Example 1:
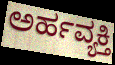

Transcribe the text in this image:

ಅರ್ಹವ್ಯಕ್ತಿ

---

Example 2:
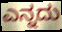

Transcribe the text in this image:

ಎನ್ನದು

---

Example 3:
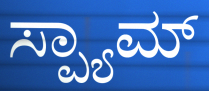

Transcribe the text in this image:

ಸ್ಪ್ಯಾಮ್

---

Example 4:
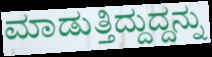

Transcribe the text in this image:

ಮಾಡುತ್ತಿದ್ದುದ್ದನ್ನು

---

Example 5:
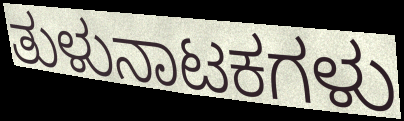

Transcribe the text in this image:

ತುಳುನಾಟಕಗಳು